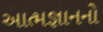
આત્મજ્ઞાનનો